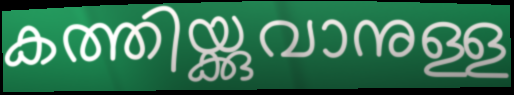
കത്തിയ്ക്കുവാനുള്ള